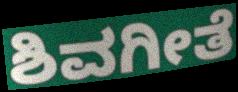
ಶಿವಗೀತೆ